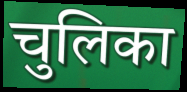
चुलिका